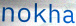
nokha